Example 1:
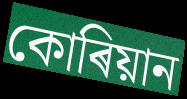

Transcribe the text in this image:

কোৰিয়ান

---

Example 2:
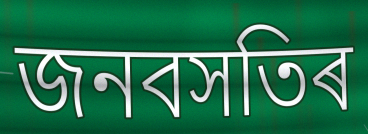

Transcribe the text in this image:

জনবসতিৰ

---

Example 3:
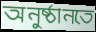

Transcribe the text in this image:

অনুষ্ঠানতে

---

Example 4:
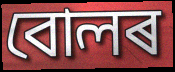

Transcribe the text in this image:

বোলৰ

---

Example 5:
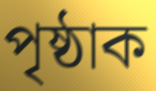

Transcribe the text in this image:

পৃষ্ঠাক